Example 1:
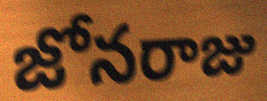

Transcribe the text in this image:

జోనరాజు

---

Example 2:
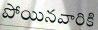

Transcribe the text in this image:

పోయినవారికి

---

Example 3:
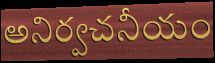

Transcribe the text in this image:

అనిర్వచనీయం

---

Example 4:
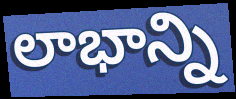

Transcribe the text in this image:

లాభాన్ని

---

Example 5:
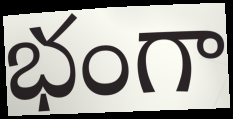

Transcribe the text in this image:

భంగా